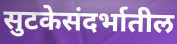
सुटकेसंदर्भातील